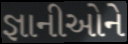
જ્ઞાનીઓને